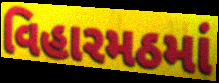
વિહારમઠમાં